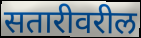
सतारीवरील